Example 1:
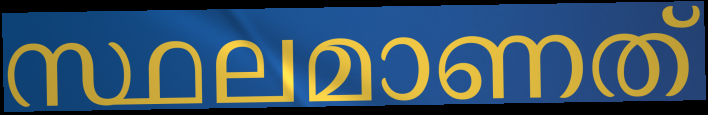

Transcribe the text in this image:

സ്ഥലമാണത്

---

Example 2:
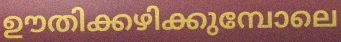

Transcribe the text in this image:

ഊതിക്കഴിക്കുമ്പോലെ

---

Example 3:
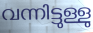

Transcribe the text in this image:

വന്നിട്ടുള്ളു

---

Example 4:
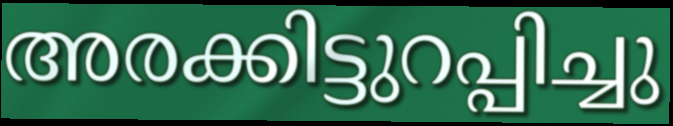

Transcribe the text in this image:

അരക്കിട്ടുറപ്പിച്ചു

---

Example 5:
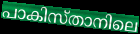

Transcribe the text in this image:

പാകിസ്താനിലെ